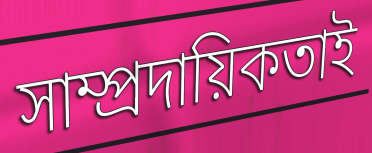
সাম্প্রদায়িকতাই